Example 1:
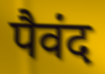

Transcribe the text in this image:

पैवंद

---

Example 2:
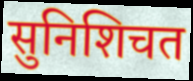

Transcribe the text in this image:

सुनिशिचत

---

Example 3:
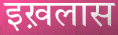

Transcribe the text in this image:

इख़लास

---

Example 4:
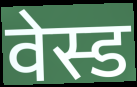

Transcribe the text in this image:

वेस्ड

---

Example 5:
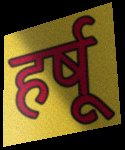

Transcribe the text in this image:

हर्षू